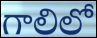
గాలిలో